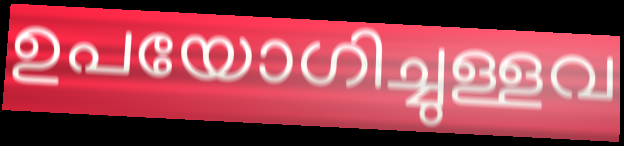
ഉപയോഗിച്ചുള്ളവ